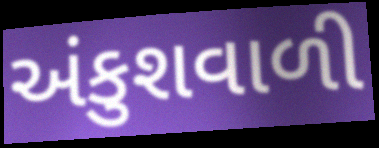
અંકુશવાળી